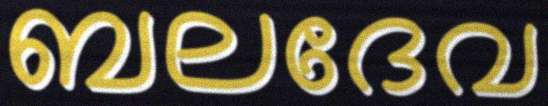
ബലദേവ